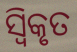
ସ୍ୱିକୃତ